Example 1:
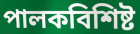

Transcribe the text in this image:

পালকবিশিষ্ট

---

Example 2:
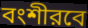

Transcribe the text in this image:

বংশীরবে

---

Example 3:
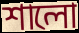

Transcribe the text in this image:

শালো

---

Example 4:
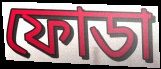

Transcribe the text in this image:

ফোডা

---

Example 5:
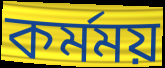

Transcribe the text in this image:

কর্মময়